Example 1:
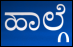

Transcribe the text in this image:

ಹಾಲ್ಗೆ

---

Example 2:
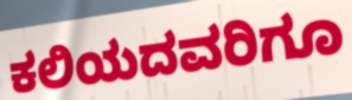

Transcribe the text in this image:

ಕಲಿಯದವರಿಗೂ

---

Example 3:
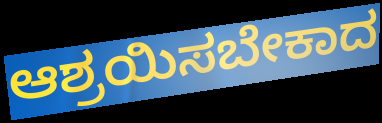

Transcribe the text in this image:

ಆಶ್ರಯಿಸಬೇಕಾದ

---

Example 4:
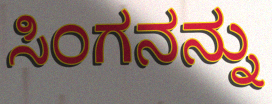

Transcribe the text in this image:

ಸಿಂಗನನ್ನು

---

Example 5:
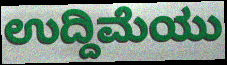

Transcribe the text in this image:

ಉದ್ದಿಮೆಯು